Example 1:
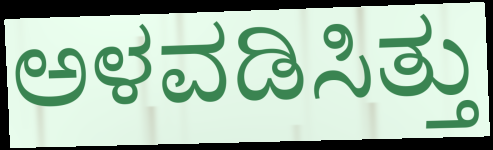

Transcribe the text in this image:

ಅಳವಡಿಸಿತ್ತು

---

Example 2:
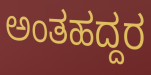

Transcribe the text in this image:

ಅಂತಹದ್ದರ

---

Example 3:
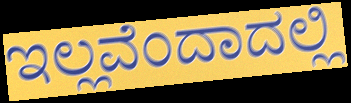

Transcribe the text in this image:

ಇಲ್ಲವೆಂದಾದಲ್ಲಿ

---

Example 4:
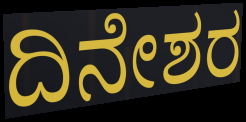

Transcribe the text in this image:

ದಿನೇಶರ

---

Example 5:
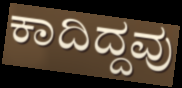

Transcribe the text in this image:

ಕಾದಿದ್ದವು